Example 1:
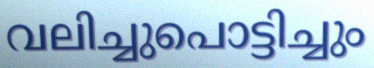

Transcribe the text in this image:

വലിച്ചുപൊട്ടിച്ചും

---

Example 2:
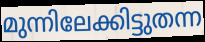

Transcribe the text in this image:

മുന്നിലേക്കിട്ടുതന്ന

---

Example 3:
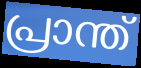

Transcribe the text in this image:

പ്രാന്ത്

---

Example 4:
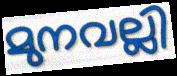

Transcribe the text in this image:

മുനവല്ലി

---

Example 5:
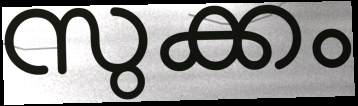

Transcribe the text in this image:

സുക്കം